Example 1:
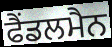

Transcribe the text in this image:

ਫੈਂਡਲਮੈਨ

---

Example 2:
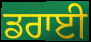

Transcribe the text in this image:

ਡਰਾਈ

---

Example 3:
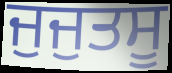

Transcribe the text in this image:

ਜੁਜੁਤਸੂ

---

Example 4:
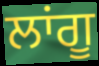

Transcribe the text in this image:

ਲਾਂਗੂ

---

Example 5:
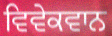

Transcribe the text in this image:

ਵਿਵੇਕਵਾਨ